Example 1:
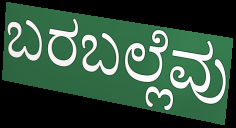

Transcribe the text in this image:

ಬರಬಲ್ಲೆವು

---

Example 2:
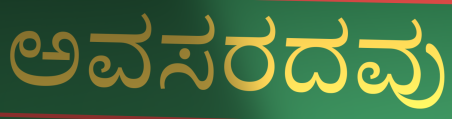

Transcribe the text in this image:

ಅವಸರದವು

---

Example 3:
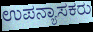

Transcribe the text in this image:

ಉಪನ್ಯಾಸಕರು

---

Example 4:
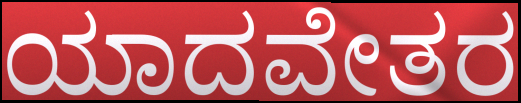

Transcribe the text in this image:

ಯಾದವೇತರ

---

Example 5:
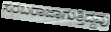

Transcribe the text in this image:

ಸರಬರಾಜಾಗುತ್ತಿದ್ದವು